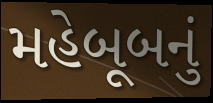
મહેબૂબનું